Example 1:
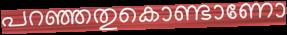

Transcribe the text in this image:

പറഞ്ഞതുകൊണ്ടാണോ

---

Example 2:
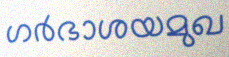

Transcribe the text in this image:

ഗർഭാശയമുഖ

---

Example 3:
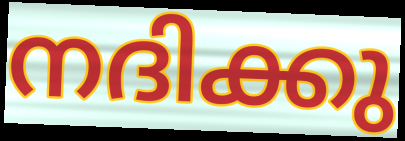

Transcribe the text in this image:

നദിക്കു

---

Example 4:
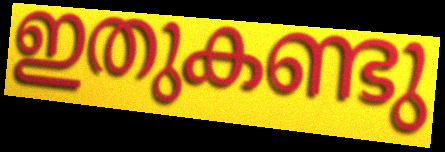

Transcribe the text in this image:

ഇതുകണ്ടു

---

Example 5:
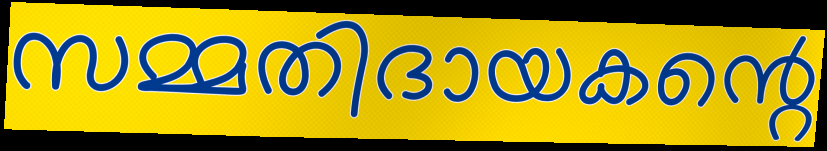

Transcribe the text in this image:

സമ്മതിദായകന്റെ